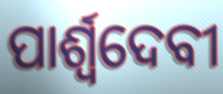
ପାର୍ଶ୍ୱଦେବୀ